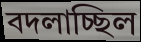
বদলাচ্ছিল